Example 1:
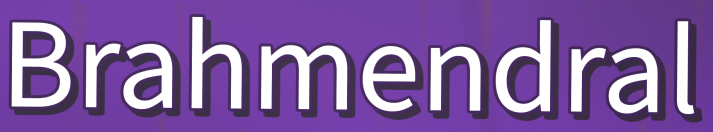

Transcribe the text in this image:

Brahmendral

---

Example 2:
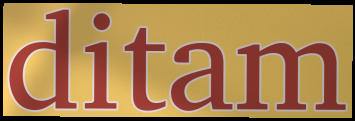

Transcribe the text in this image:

ditam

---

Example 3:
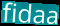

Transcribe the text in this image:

fidaa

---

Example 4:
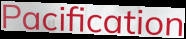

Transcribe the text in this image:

Pacification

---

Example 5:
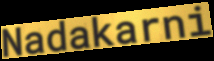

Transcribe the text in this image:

Nadakarni